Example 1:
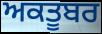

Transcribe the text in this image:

ਅਕਤੂਬਰ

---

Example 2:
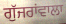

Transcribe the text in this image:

ਗੁੱਜਰਾਂਵਾਲਾ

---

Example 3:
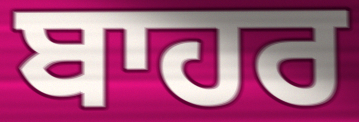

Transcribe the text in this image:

ਬਾਹਰ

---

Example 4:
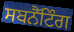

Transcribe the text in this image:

ਸਬਨੈੱਟਿੰਗ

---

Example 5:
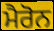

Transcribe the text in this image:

ਮੈਰੋਨ